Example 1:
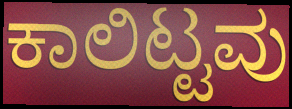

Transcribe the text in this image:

ಕಾಲಿಟ್ಟವು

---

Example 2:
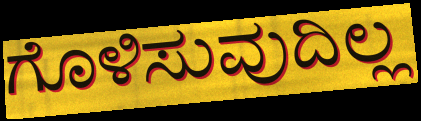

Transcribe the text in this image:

ಗೊಳಿಸುವುದಿಲ್ಲ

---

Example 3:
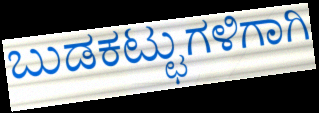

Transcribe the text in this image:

ಬುಡಕಟ್ಟುಗಳಿಗಾಗಿ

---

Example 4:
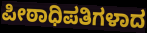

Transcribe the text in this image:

ಪೀಠಾಧಿಪತಿಗಳಾದ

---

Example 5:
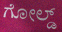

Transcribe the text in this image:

ಗೋಲ್ಡ್